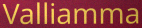
Valliamma